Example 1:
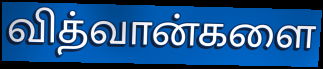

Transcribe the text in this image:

வித்வான்களை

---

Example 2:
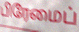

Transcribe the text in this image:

பிரேமைப்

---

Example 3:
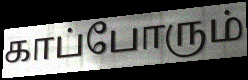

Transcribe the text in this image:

காப்போரும்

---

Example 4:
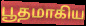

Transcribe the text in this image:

பூதமாகிய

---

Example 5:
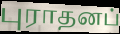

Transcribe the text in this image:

புராதனப்